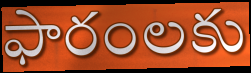
ఫారంలకు